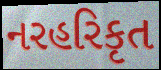
નરહરિકૃત